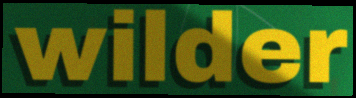
wilder